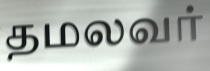
தமலவர்